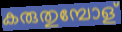
കരുതുമ്പോള്